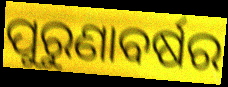
ପୁରୁଣାବର୍ଷର